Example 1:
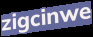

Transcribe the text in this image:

zigcinwe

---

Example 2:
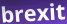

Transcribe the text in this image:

brexit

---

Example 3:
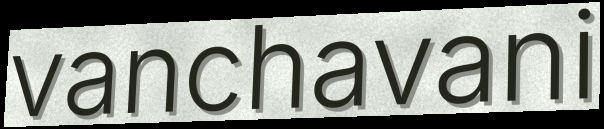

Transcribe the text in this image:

vanchavani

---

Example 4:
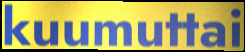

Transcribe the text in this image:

kuumuttai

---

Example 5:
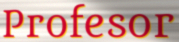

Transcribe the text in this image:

Profesor